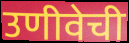
उणीवेची